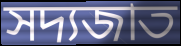
সদ্যজাত